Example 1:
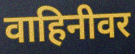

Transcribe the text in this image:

वाहिनीवर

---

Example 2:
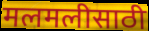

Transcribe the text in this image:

मलमलीसाठी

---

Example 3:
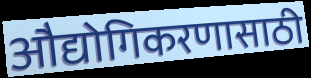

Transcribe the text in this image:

औद्योगिकरणासाठी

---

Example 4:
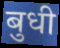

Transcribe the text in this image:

बुधी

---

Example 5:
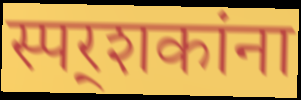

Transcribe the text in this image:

स्पर्शकांना